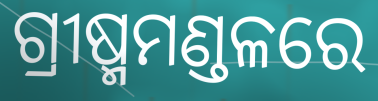
ଗ୍ରୀଷ୍ମମଣ୍ଡଳରେ